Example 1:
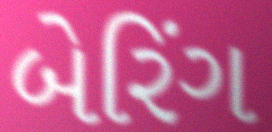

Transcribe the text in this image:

બેરિંગ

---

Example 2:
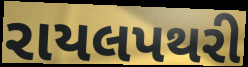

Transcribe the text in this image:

રાયલપથરી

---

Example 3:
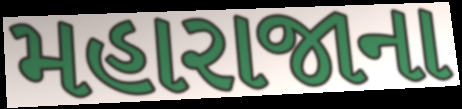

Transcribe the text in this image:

મહારાજાના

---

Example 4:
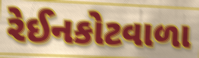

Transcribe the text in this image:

રેઈનકોટવાળા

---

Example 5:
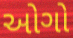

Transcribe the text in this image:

ઓગો